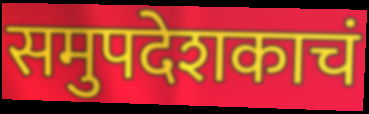
समुपदेशकाचं